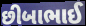
છીબાભાઈ